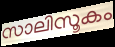
സാലിസൂകം